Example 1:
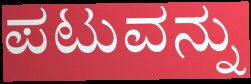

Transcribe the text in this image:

ಪಟುವನ್ನು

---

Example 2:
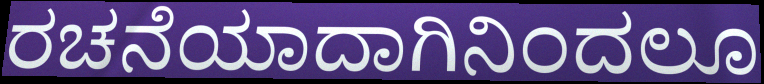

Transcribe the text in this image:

ರಚನೆಯಾದಾಗಿನಿಂದಲೂ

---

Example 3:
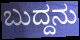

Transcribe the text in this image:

ಬುದ್ದನು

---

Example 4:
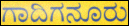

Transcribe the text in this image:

ಗಾದಿಗನೂರು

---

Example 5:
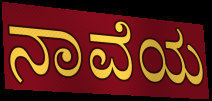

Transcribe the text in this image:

ನಾವೆಯ